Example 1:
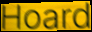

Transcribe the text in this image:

Hoard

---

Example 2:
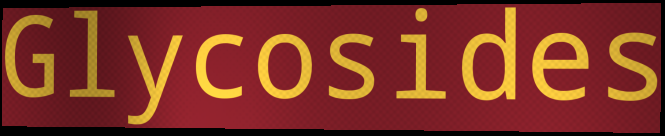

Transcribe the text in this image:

Glycosides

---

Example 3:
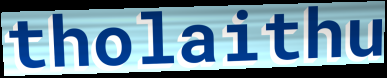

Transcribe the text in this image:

tholaithu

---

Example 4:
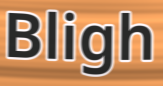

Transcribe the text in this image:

Bligh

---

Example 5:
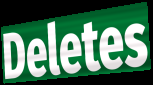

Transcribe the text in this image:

Deletes